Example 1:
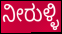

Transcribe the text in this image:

ನೀರುಳ್ಳಿ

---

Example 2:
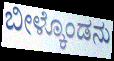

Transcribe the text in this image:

ಬೀಳ್ಕೊಂಡನು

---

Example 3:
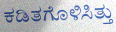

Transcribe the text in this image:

ಕಡಿತಗೊಳಿಸಿತ್ತು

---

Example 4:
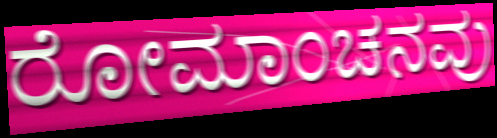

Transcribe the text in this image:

ರೋಮಾಂಚನವು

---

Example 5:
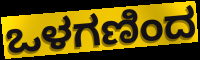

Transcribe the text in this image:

ಒಳಗಣಿಂದ